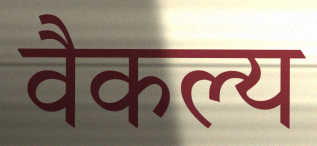
वैकल्य